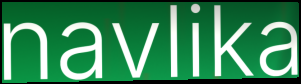
navlika